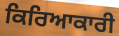
ਕਿਰਿਆਕਾਰੀ